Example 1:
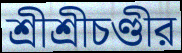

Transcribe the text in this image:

শ্রীশ্রীচণ্ডীর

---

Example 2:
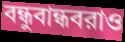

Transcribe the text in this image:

বন্ধুবান্ধবরাও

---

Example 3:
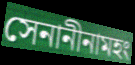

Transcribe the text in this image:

সেনানীনামহং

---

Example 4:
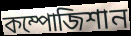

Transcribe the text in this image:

কম্পোজিশান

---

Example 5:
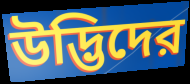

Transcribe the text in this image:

উদ্ভিদের